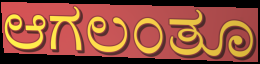
ಆಗಲಂತೂ